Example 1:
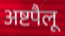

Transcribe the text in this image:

अष्टपैलू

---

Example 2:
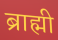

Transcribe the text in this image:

ब्राह्मी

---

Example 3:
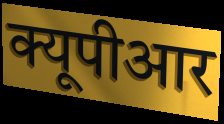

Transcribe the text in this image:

क्यूपीआर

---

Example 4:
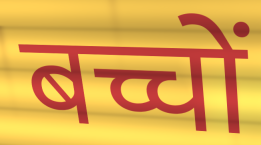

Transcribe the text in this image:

बच्चों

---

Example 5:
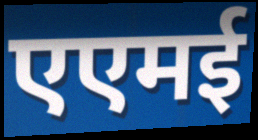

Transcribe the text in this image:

एएमई